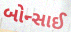
બોન્સાઈ